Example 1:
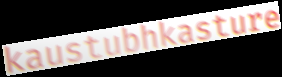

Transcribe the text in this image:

kaustubhkasture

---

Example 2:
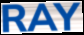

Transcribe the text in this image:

RAY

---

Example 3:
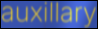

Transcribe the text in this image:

auxillary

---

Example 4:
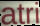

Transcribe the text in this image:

atri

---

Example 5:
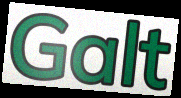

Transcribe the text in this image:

Galt